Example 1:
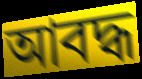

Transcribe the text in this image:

আবদ্ধ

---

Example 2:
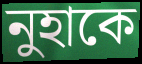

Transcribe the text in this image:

নুহাকে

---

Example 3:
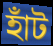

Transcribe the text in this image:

হাঁট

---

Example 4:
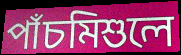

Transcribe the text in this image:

পাঁচমিশুলে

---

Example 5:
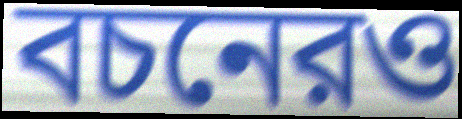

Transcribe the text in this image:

বচনেরও